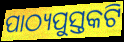
ପାଠ୍ୟପୁସ୍ତକଟି